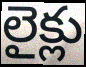
లైక్లు